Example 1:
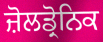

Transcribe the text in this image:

ਜ਼ੋਲਡ੍ਰੋਨਿਕ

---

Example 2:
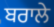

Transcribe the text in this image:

ਬਰਾਲੇ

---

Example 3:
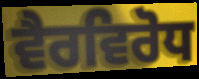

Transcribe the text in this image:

ਵੈਰਵਿਰੋਧ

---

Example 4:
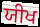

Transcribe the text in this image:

ਯੀਖ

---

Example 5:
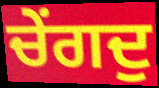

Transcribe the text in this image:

ਚੇਂਗਦੁ